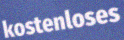
kostenloses